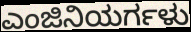
ಎಂಜಿನಿಯರ್ಗಳು